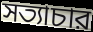
সত্যাচার